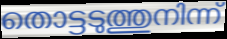
തൊട്ടടുത്തുനിന്ന്